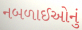
નબળાઈઓનું